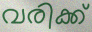
വരിക്ക്